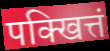
पक्खित्तं